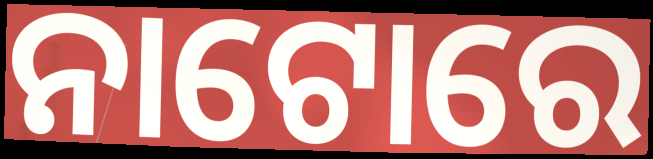
ନାଟୋରେ